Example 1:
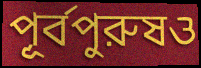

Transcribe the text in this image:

পূর্বপুরুষও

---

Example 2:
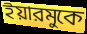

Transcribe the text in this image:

ইয়ারমুকে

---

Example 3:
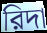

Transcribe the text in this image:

রিদা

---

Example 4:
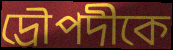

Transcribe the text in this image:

দ্রৌপদীকে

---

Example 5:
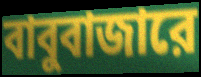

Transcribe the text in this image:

বাবুবাজারে